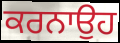
ਕਰਨਾਉਹ